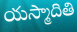
యస్మాదితి